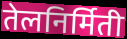
तेलनिर्मिती